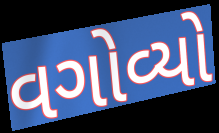
વગોવ્યો